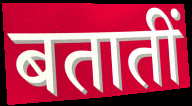
बतातीं